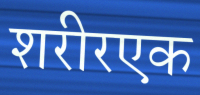
शरीरएक